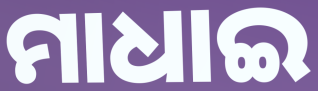
ମାଧାଇ